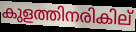
കുളത്തിനരികില്